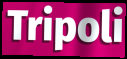
Tripoli